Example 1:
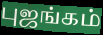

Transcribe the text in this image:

புஜங்கம்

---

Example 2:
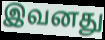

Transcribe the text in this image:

இவனது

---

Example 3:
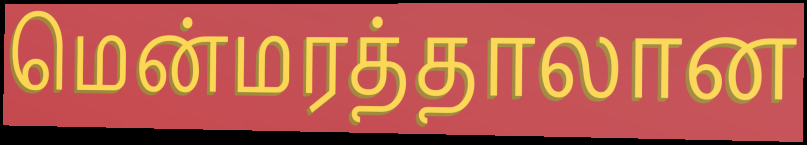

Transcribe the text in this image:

மென்மரத்தாலான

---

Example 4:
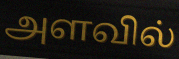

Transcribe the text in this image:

அளவில்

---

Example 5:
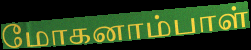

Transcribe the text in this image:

மோகனாம்பாள்